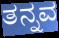
ತನ್ನವ